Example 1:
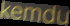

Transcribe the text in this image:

kemdu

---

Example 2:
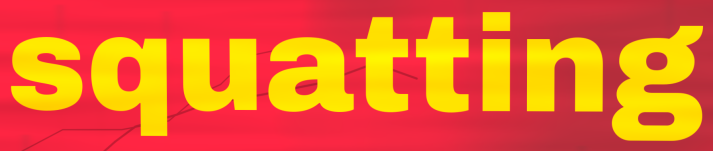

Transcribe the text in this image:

squatting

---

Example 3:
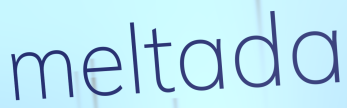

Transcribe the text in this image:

meltada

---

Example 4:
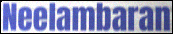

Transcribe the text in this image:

Neelambaran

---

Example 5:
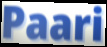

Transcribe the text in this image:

Paari